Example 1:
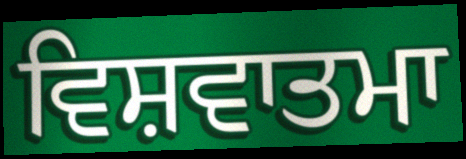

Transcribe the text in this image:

ਵਿਸ਼ਵਾਤਮਾ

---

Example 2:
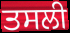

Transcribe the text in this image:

ਤਸਲੀ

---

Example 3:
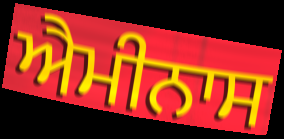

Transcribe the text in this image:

ਐਮੀਨਾਸ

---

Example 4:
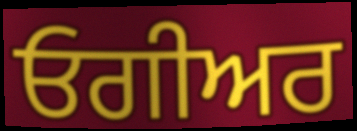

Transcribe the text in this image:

ਓਗੀਅਰ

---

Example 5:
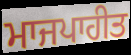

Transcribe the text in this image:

ਮਾਜਪਾਹੀਤ